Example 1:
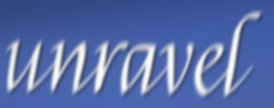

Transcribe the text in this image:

unravel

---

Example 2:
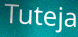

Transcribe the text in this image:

Tuteja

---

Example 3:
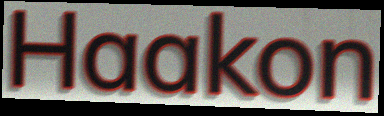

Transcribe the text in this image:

Haakon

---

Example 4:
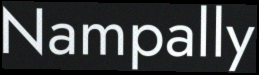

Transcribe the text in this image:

Nampally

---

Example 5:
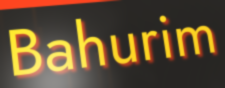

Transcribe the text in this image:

Bahurim